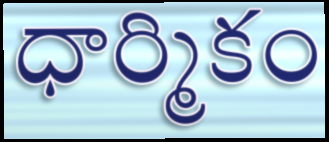
ధార్మికం